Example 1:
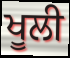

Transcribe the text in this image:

ਖੂਲੀ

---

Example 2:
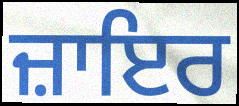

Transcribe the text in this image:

ਜ਼ਾਇਰ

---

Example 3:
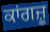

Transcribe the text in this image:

ਕਾਂਗਜ਼ੂ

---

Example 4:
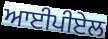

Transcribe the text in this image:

ਆਈਪੀਏਲ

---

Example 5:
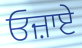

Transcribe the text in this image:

ਓਜ਼ਾਏ